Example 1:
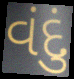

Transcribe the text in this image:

વંદું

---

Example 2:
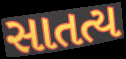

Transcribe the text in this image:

સાતત્ય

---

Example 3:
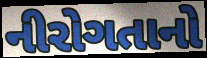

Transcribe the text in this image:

નીરોગતાનો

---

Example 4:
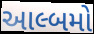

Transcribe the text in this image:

આલ્બમો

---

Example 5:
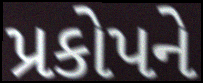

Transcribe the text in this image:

પ્રકોપને